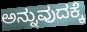
ಅನ್ನುವುದಕ್ಕೆ